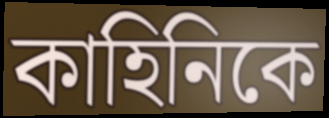
কাহিনিকে